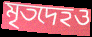
মৃতদেহও